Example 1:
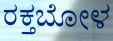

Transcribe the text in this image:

ರಕ್ತಬೋಳ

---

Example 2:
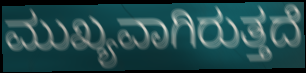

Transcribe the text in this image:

ಮುಖ್ಯವಾಗಿರುತ್ತದೆ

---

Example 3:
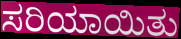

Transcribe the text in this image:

ಸರಿಯಾಯಿತು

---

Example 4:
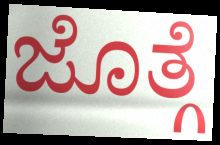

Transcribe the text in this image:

ಜೊತ್ಗೆ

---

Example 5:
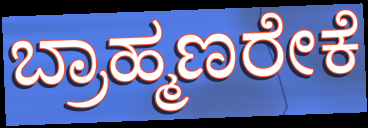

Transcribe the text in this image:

ಬ್ರಾಹ್ಮಣರೇಕೆ